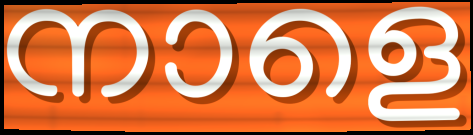
നാളെ